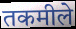
तकमीले